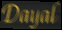
Dayal